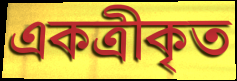
একত্রীকৃত